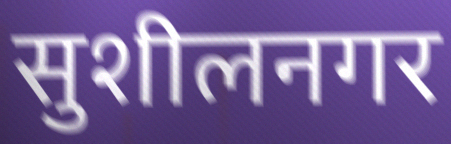
सुशीलनगर